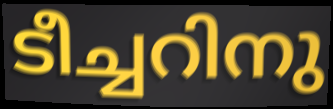
ടീച്ചറിനു